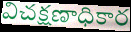
విచక్షణాధికార